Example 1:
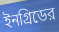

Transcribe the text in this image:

ইনগ্রিডের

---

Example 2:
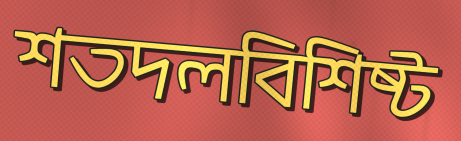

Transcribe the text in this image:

শতদলবিশিষ্ট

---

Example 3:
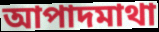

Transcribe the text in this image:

আপাদমাথা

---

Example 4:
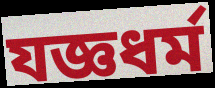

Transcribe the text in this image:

যজ্ঞধর্ম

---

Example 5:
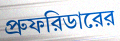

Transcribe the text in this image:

প্রুফরিডারের